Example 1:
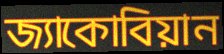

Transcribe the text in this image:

জ্যাকোবিয়ান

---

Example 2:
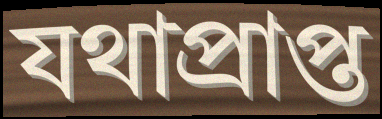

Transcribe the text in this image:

যথাপ্রাপ্ত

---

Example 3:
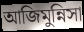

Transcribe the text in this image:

আজিমুন্নিসা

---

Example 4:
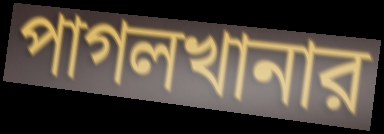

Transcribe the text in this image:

পাগলখানার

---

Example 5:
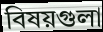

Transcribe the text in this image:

বিষয়গুলা